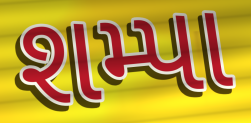
શમ્પા